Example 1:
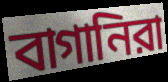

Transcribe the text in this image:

বাগানিরা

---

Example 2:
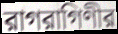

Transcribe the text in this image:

রাগরাগিণীর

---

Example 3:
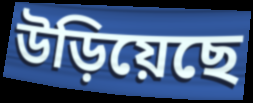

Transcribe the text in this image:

উড়িয়েছে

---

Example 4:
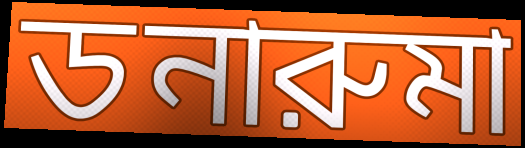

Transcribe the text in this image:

ডনারুমা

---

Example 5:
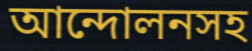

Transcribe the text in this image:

আন্দোলনসহ